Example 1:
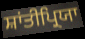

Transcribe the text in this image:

ਸ਼ਾਂਤੀਪ੍ਰਿਯਾ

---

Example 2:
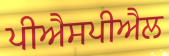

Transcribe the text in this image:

ਪੀਐਸਪੀਐਲ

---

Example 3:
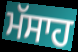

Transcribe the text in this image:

ਮੱਸਾਹ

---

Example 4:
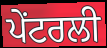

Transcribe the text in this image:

ਪੇਂਟਰਲੀ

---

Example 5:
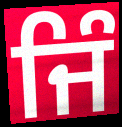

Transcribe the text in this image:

ਜਿੰ